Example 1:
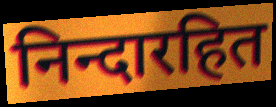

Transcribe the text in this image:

निन्दारहित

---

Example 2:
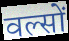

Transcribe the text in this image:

वल्सों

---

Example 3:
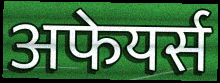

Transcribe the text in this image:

अफेयर्स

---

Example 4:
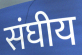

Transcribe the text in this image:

संघीय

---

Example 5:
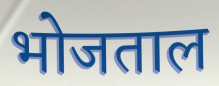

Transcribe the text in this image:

भोजताल